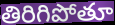
తిరిగిపోతూ